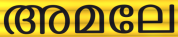
അമലേ